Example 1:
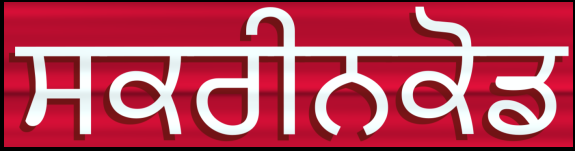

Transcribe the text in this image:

ਸਕਰੀਨਕੋਡ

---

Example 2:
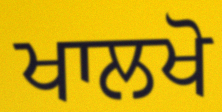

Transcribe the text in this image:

ਖਾਲਖੋ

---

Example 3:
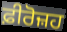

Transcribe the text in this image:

ਫ਼ੀਰੋਜ਼ਹ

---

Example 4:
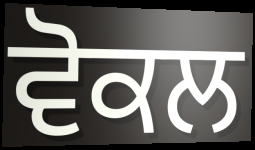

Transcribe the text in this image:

ਵੋਕਲ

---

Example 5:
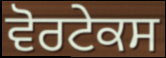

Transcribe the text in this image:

ਵੋਰਟੇਕਸ